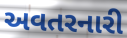
અવતરનારી